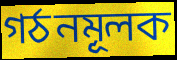
গঠনমূলক